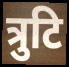
त्रुटि